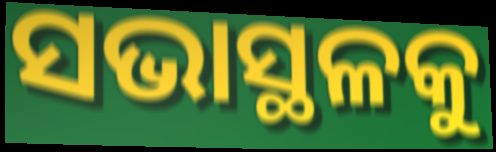
ସଭାସ୍ଥଳକୁ